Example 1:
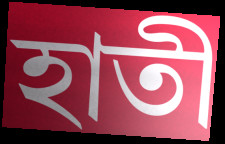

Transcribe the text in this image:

হাতী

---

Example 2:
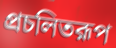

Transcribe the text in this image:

প্রচলিতরূপ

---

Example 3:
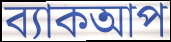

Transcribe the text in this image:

ব্যাকআপ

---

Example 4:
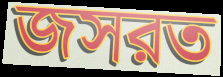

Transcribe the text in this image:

জসরত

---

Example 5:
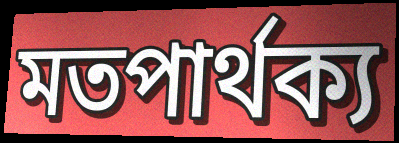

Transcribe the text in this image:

মতপার্থক্য